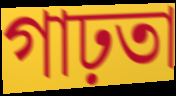
গাঢ়তা